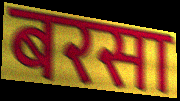
बरसा